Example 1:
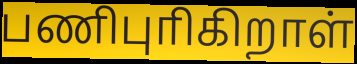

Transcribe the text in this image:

பணிபுரிகிறாள்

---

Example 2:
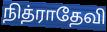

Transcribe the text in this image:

நித்ராதேவி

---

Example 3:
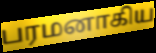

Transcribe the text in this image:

பரமனாகிய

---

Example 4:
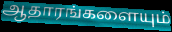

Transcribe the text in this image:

ஆதாரங்களையும்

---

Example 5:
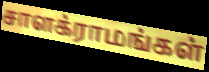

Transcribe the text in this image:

சாளக்ராமங்கள்